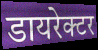
डायरेक्‍टर